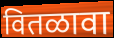
वितळावा